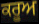
ਕਰੂਅ